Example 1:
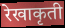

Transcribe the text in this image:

रेखाकृती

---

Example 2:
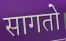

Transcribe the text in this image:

सागतो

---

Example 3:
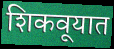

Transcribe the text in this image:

शिकवूयात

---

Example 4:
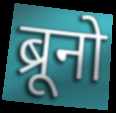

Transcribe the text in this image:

ब्रूनो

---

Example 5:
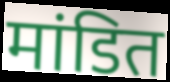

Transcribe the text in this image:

मांडित